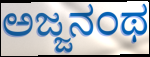
ಅಜ್ಜನಂಥ